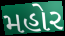
મહોર